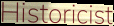
Historicist